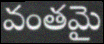
వంతమై